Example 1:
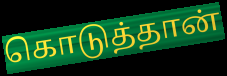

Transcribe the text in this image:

கொடுத்தான்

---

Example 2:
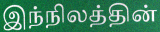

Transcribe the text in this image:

இந்நிலத்தின்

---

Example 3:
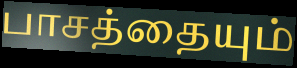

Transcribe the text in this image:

பாசத்தையும்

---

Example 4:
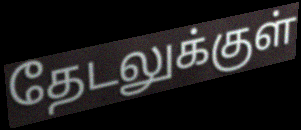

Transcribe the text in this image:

தேடலுக்குள்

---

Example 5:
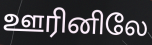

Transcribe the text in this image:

ஊரினிலே